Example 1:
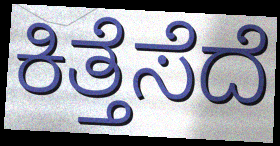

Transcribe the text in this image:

ಕಿತ್ತೆಸೆದೆ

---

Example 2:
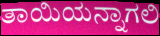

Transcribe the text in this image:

ತಾಯಿಯನ್ನಾಗಲಿ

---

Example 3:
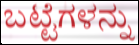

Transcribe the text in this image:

ಬಟ್ಟೆಗಳನ್ನು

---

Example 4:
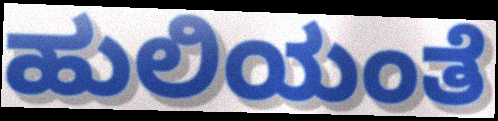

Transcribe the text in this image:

ಹುಲಿಯಂತೆ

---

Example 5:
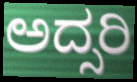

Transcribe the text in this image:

ಅದ್ಸರಿ